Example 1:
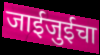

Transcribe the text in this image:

जाईजुईचा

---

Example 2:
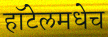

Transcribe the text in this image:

हॉटेलमधेच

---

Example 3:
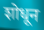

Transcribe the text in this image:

शोधून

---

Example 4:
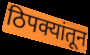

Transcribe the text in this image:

ठिपक्यांतून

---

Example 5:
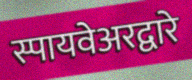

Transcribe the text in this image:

स्पायवेअरद्वारे